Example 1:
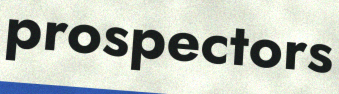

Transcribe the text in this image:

prospectors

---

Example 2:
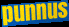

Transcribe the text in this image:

punnus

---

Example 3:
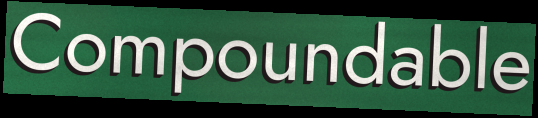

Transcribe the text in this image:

Compoundable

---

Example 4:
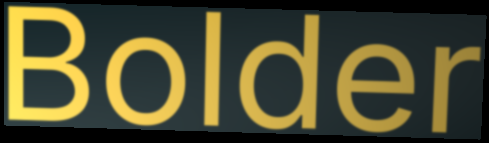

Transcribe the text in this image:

Bolder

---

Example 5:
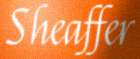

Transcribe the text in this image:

Sheaffer